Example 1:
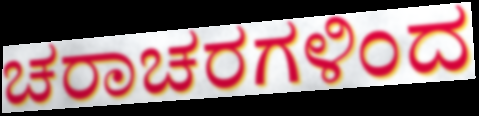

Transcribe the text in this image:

ಚರಾಚರಗಳಿಂದ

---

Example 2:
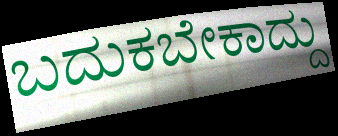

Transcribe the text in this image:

ಬದುಕಬೇಕಾದ್ದು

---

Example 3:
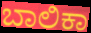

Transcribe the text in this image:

ಬಾಲಿಕಾ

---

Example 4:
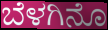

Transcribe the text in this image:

ಬೆಳಗಿನೊ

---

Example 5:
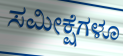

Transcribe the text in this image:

ಸಮೀಕ್ಷೆಗಳೂ